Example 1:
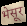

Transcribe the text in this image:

भेसूर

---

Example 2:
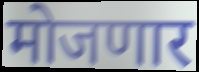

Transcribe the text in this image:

मोजणार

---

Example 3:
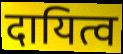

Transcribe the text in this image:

दायित्व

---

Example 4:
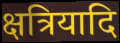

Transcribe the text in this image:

क्षत्रियादि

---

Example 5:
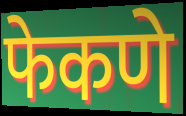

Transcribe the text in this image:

फेकणे